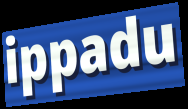
ippadu